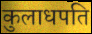
कुलाधपति